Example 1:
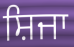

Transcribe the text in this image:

ਸ਼ਿਜਾ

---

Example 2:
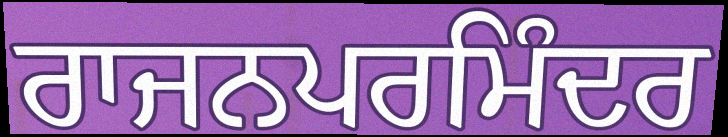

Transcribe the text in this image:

ਰਾਜਨਪਰਮਿੰਦਰ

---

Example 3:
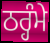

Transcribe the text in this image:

ਠਰ੍ਹੰਮੇ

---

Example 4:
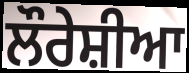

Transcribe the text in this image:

ਲੌਰੇਸ਼ੀਆ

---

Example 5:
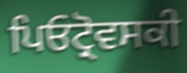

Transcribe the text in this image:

ਪਿਓਟ੍ਰੋਵਸਕੀ